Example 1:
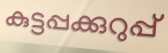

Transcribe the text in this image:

കുട്ടപ്പക്കുറുപ്പ്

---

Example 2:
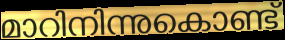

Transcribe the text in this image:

മാറിനിന്നുകൊണ്ട്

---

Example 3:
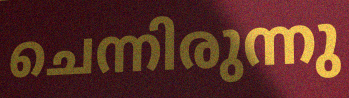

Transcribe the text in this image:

ചെന്നിരുന്നു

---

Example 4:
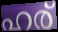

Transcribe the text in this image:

ഹര്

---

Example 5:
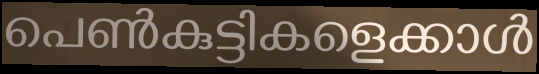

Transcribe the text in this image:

പെൺകുട്ടികളെക്കാൾ